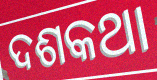
ଦଶକଥା